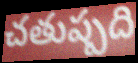
చతుష్పది